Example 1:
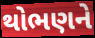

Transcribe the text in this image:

થોભણને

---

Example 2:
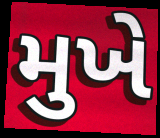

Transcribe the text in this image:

મુખે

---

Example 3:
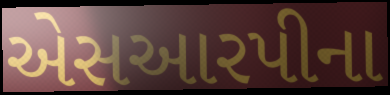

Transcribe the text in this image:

એસઆરપીના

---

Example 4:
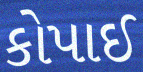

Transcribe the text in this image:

કોપાઈ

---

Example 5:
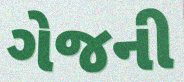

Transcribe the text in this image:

ગેજની